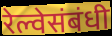
रेल्वेसंबंधी